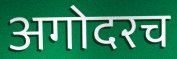
अगोदरच